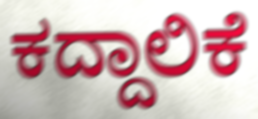
ಕದ್ದಾಲಿಕೆ